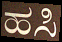
ಹಸಿ